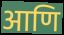
आणि